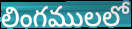
లింగములలో